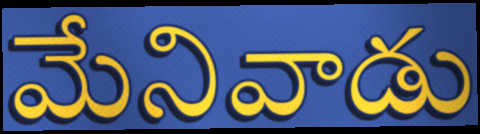
మేనివాడు